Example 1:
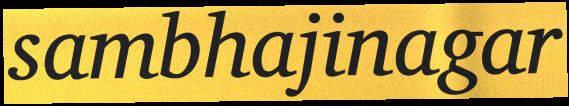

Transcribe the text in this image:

sambhajinagar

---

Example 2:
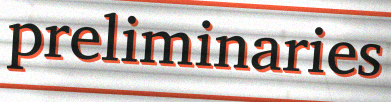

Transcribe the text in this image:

preliminaries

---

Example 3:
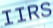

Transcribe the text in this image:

IIRS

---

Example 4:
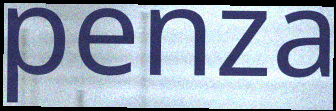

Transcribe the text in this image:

penza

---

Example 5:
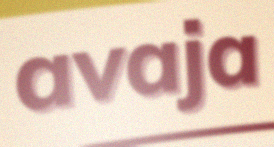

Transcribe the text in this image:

avaja